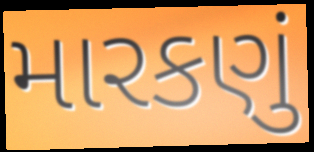
મારકણું